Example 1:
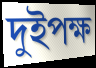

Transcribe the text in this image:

দুইপক্ষ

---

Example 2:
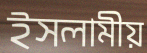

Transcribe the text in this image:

ইসলামীয়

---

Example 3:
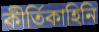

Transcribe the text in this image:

কীর্তিকাহিনি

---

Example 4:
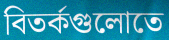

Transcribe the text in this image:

বিতর্কগুলোতে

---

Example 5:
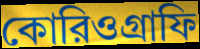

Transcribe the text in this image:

কোরিওগ্রাফি